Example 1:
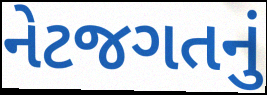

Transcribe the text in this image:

નેટજગતનું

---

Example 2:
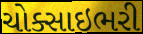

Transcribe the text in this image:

ચોક્સાઇભરી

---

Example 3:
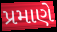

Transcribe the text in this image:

પ્રમાણે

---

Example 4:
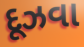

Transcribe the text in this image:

દૂઝવા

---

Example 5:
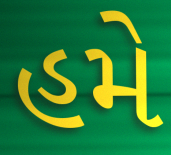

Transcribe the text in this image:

હમે